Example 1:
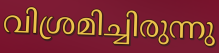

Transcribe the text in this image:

വിശ്രമിച്ചിരുന്നു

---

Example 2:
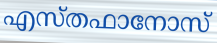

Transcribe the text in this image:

എസ്തഫാനോസ്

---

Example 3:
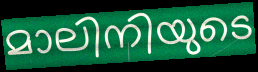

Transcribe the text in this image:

മാലിനിയുടെ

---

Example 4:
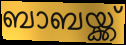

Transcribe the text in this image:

ബാബയ്ക്ക്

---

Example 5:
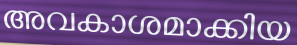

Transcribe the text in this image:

അവകാശമാക്കിയ